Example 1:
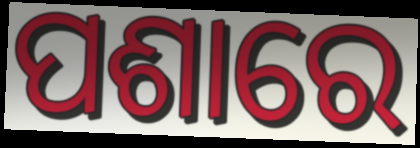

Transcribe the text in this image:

ପଶାରେ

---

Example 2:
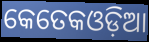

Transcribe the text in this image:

କେତେକଓଡ଼ିଆ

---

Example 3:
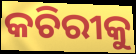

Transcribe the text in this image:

କଚିରୀକୁ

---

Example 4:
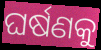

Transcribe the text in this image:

ଘର୍ଷଣକୁ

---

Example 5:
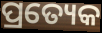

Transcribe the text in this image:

ପ୍ରତ୍ୟେକ